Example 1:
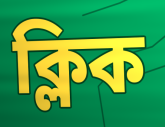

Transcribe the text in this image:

ক্লিক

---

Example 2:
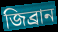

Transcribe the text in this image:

জিব্রান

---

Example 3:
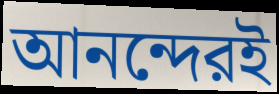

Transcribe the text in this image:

আনন্দেরই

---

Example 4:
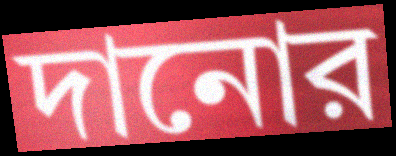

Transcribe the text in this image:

দানোর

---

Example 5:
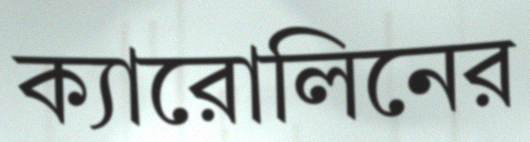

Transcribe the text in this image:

ক্যারোলিনের